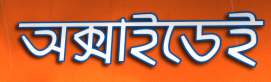
অক্সাইডেই